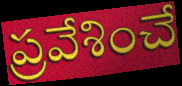
ప్రవేశించే